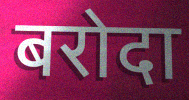
बरोदा